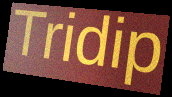
Tridip